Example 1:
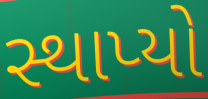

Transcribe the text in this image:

સ્થાપ્યો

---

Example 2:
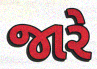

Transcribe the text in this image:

જારે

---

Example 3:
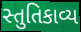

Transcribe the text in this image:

સ્તુતિકાવ્ય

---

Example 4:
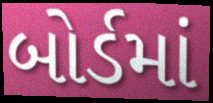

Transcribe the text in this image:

બોર્ડમાં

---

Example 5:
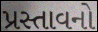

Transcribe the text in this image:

પ્રસ્તાવનો